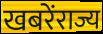
खबरेंराज्य